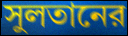
সুলতানের